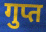
गुप्त